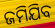
ଜମିଯିବ